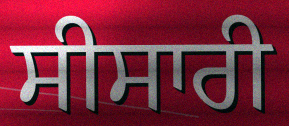
ਸੀਸਾਰੀ